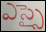
ఎస్సై